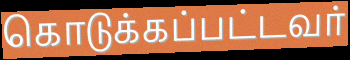
கொடுக்கப்பட்டவர்